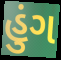
હુંગ